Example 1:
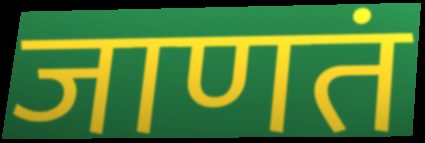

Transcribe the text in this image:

जाणतं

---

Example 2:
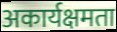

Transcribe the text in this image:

अकार्यक्षमता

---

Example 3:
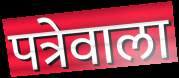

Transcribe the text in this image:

पत्रेवाला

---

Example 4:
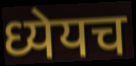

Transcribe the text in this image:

ध्येयच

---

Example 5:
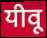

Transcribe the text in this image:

यीवू